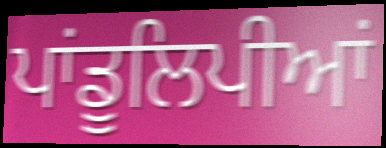
ਪਾਂਡੂਲਿਪੀਆਂ